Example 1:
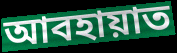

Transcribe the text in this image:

আবহায়াত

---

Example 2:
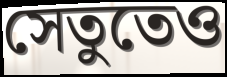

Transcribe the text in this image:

সেতুতেও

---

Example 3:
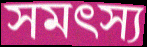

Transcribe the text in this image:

সমৎস্য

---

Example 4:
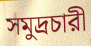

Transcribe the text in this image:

সমুদ্রচারী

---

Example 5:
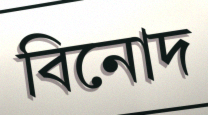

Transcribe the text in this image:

বিনোদ